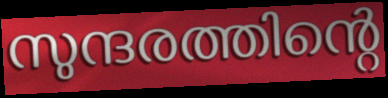
സുന്ദരത്തിന്റെ